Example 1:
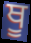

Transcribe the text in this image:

ਥੂ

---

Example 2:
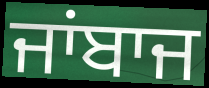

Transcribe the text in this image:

ਜਾਂਬਾਜ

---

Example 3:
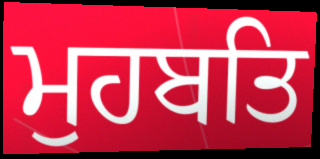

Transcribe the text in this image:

ਮੁਹਬਤਿ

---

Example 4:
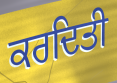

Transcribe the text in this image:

ਕਰਦਿਤੀ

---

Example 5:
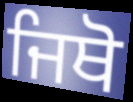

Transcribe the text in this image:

ਜਿਥੋ